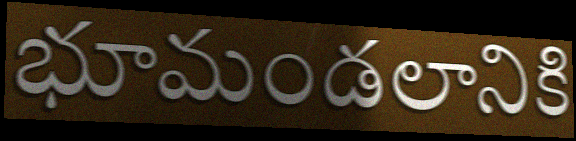
భూమండలానికి